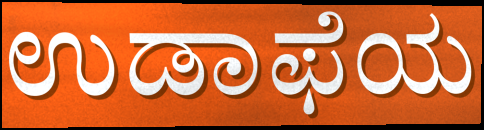
ಉಡಾಫೆಯ